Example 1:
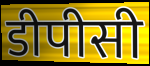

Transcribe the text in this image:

डीपीसी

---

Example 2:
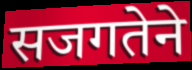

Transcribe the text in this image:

सजगतेने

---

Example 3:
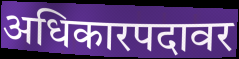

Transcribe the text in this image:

अधिकारपदावर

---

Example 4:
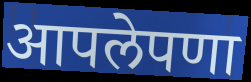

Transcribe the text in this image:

आपलेपणा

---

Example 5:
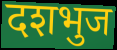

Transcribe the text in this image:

दशभुज